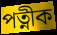
পত্নীক